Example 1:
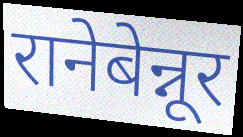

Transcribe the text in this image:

रानेबेन्नूर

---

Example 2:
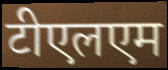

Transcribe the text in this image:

टीएलएम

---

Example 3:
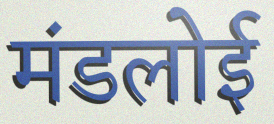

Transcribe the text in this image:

मंडलोई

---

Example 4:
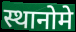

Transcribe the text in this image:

स्थानोमे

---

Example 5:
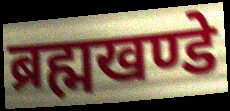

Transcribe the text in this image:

ब्रह्मखण्डे